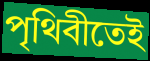
পৃথিবীতেই